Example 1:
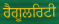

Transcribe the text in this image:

ਰੈਗੂਲਰਿਟੀ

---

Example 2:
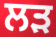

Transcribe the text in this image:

ਲੜ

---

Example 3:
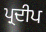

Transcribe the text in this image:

ਪ੍ਰਦੀਪ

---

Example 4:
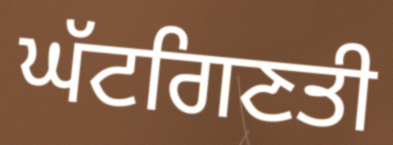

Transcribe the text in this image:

ਘੱਟਗਿਣਤੀ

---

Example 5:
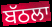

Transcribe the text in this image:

ਬੱਠਲਾ